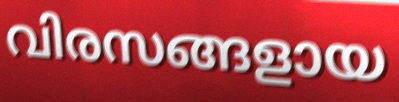
വിരസങ്ങളായ